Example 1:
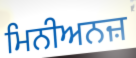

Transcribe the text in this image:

ਮਿਨੀਅਨਜ਼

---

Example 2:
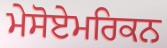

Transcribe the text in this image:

ਮੇਸੋਏਮਰਿਕਨ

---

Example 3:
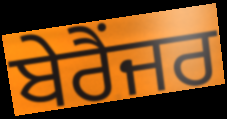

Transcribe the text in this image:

ਬੇਰੈਂਜਰ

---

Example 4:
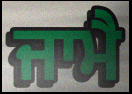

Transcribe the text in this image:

ਜਾਮੈ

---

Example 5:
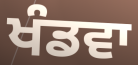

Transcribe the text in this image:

ਖੰਡਵਾ